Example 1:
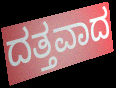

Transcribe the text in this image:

ದತ್ತವಾದ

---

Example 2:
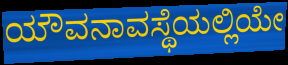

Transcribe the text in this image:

ಯೌವನಾವಸ್ಥೆಯಲ್ಲಿಯೇ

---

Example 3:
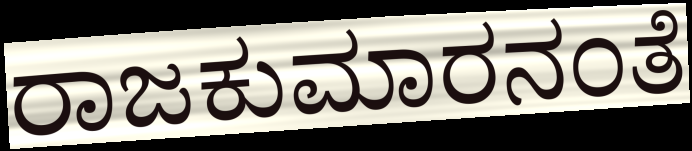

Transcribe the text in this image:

ರಾಜಕುಮಾರನಂತೆ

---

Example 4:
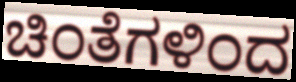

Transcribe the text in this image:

ಚಿಂತೆಗಳಿಂದ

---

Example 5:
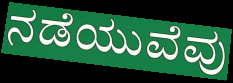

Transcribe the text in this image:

ನಡೆಯುವೆವು